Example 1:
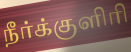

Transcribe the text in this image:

நீர்க்குளிரி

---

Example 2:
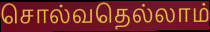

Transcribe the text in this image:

சொல்வதெல்லாம்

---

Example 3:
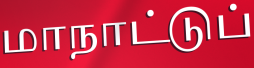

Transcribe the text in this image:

மாநாட்டுப்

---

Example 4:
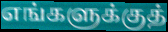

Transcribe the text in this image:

எங்களுக்குத்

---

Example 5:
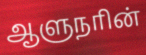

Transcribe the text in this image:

ஆளுநரின்